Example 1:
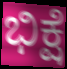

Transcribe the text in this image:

ಭಿಕ್ಷೆ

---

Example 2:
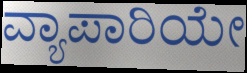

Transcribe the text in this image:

ವ್ಯಾಪಾರಿಯೇ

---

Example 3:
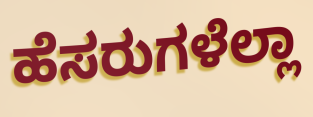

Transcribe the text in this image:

ಹೆಸರುಗಳೆಲ್ಲಾ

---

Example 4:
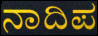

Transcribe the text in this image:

ನಾದಿಪ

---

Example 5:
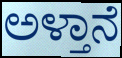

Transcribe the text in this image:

ಅಳ್ತಾನೆ